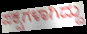
ಪಕ್ಷಗಳಾಗಿದ್ದು